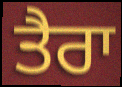
ਤੈਰਾ